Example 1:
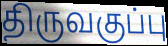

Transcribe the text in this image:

திருவகுப்பு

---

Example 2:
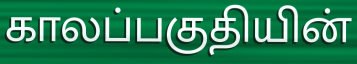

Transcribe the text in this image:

காலப்பகுதியின்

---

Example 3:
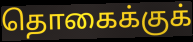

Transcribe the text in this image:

தொகைக்குக்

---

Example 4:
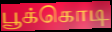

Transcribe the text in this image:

பூக்கொடி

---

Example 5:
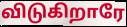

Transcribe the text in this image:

விடுகிறாரே